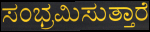
ಸಂಭ್ರಮಿಸುತ್ತಾರೆ